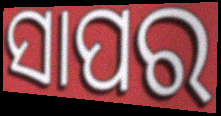
ସାପର